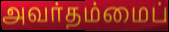
அவர்தம்மைப்